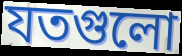
যতগুলো